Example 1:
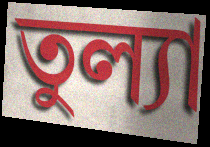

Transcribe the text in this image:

তুল্যা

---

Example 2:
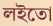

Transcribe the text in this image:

লইতো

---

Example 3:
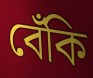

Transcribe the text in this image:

বেঁকি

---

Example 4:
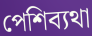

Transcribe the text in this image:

পেশিব্যথা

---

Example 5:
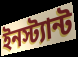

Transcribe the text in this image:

ইনস্ট্যান্ট